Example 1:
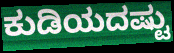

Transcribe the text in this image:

ಕುಡಿಯದಷ್ಟು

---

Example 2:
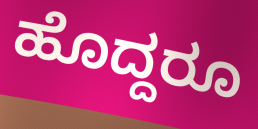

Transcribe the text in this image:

ಹೊದ್ದರೂ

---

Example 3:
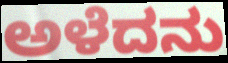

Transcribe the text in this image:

ಅಳೆದನು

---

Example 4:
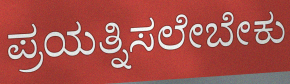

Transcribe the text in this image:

ಪ್ರಯತ್ನಿಸಲೇಬೇಕು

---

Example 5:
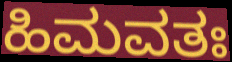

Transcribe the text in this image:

ಹಿಮವತಃ